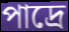
পাদ্রে